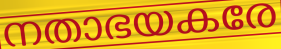
നതാഭയകരേ